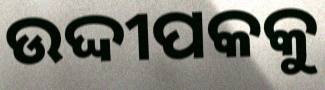
ଉଦ୍ଦୀପକକୁ